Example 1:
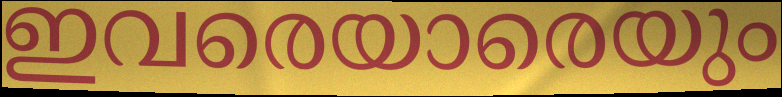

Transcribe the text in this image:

ഇവരെയാരെയും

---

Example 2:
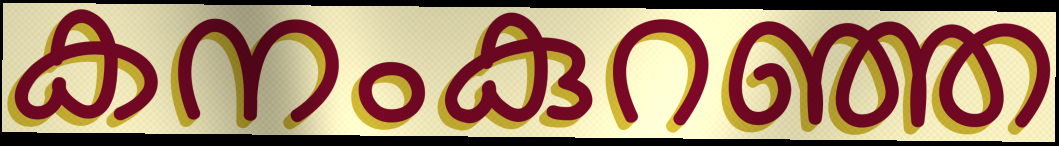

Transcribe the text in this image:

കനംകുറഞ്ഞ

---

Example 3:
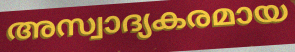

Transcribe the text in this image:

അസ്വാദ്യകരമായ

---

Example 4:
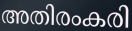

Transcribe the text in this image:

അതിരംകരി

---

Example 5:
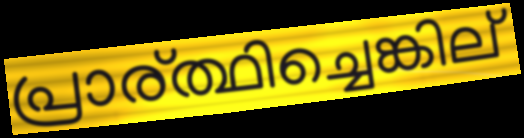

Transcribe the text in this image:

പ്രാര്ത്ഥിച്ചെങ്കില്